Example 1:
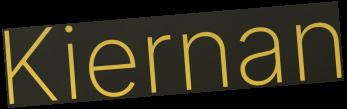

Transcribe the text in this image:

Kiernan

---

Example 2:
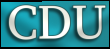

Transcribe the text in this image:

CDU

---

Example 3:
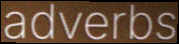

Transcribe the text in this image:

adverbs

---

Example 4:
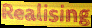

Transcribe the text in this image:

Realising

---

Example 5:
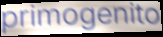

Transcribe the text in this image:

primogenito